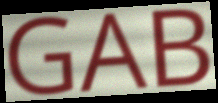
GAB